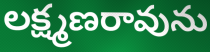
లక్ష్మణరావును